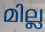
മില്ല